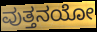
ವುತ್ತನಯೋ